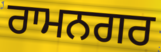
ਰਾਮਨਗਰ